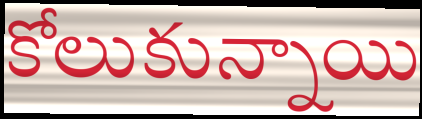
కోలుకున్నాయి